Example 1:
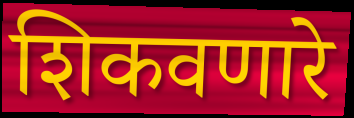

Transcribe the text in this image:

शिकवणारे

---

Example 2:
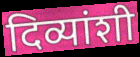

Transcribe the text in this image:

दिव्यांशी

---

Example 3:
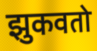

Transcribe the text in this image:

झुकवतो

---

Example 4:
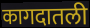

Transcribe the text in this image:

कागदातली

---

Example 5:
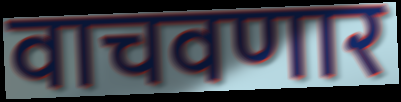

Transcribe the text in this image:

वाचवणार